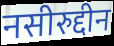
नसीरुद्दीन